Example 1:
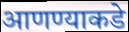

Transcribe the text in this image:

आणण्याकडे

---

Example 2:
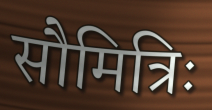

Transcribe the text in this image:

सौमित्रिः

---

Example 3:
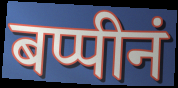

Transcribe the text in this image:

बप्पीनं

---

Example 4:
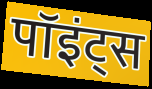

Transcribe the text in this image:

पॉइंट्स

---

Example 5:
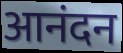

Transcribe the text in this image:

आनंदन